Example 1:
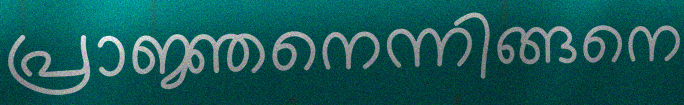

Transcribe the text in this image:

പ്രാജ്ഞനെന്നിങ്ങനെ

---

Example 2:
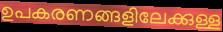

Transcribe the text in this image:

ഉപകരണങ്ങളിലേക്കുള്ള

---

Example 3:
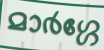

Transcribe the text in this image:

മാർഗ്ഗേ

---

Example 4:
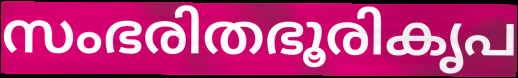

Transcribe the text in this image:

സംഭരിതഭൂരികൃപ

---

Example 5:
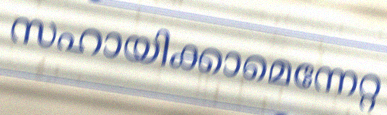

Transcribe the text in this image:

സഹായിക്കാമെന്നേറ്റ